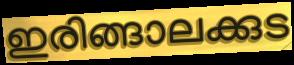
ഇരിങ്ങാലക്കുട